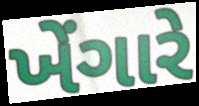
ખેંગારે